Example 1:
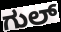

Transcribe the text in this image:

ಗುಲ್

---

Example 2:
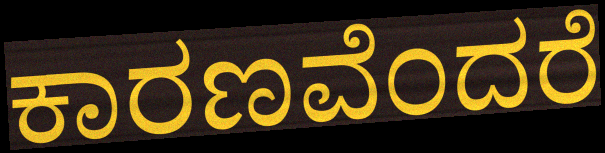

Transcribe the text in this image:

ಕಾರಣವೆಂದರೆ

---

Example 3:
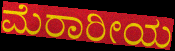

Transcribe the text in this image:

ಮೆರಾರೀಯ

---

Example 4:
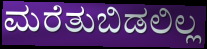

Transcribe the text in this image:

ಮರೆತುಬಿಡಲಿಲ್ಲ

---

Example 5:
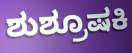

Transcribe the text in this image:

ಶುಶ್ರೂಷಕಿ